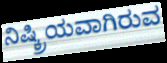
ನಿಷ್ಕ್ರಿಯವಾಗಿರುವ